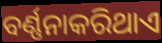
ବର୍ଣ୍ଣନାକରିଥାଏ